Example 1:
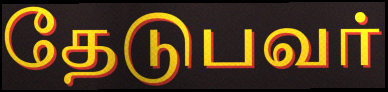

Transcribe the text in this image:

தேடுபவர்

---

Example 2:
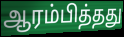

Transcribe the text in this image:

ஆரம்பித்தது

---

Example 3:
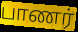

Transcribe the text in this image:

பாணர்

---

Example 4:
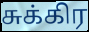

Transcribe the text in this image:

சுக்கிர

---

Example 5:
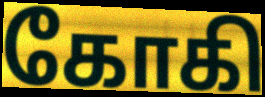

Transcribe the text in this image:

கோகி